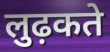
लुढ़कते